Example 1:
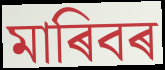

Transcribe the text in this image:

মাৰিবৰ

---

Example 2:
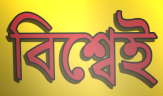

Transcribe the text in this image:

বিশ্বেই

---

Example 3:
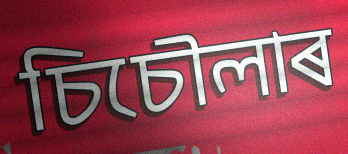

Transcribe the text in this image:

চিচৌলাৰ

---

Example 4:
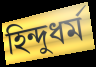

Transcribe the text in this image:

হিন্দুধৰ্ম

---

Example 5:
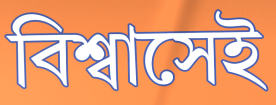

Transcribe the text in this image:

বিশ্বাসেই